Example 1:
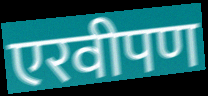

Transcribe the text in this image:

एरवीपण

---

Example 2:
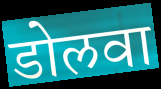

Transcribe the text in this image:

डोलवा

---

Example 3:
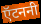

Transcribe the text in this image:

ऍटननी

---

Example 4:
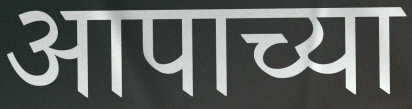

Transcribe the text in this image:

आपाच्या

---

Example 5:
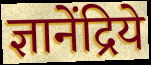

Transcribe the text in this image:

ज्ञानेंद्रिये